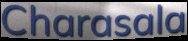
Charasala